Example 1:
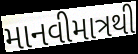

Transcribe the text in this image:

માનવીમાત્રથી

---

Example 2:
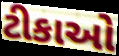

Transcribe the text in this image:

ટીકાઓ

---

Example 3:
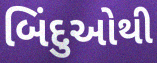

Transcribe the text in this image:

બિંદુઓથી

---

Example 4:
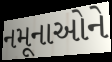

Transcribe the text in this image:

નમૂનાઓને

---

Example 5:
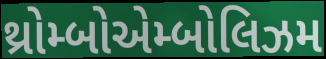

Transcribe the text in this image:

થ્રોમ્બોએમ્બોલિઝમ